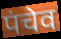
पंचेव